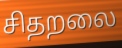
சிதறலை